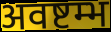
अवष्टम्भ